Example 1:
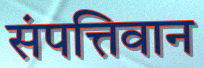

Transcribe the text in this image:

संपत्तिवान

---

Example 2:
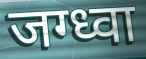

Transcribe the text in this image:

जग्ध्वा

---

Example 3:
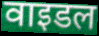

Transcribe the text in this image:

वाइडल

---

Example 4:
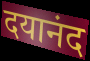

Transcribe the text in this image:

दयानंद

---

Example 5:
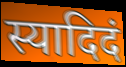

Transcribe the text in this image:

स्यादिदं